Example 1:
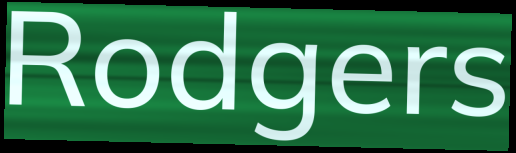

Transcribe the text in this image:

Rodgers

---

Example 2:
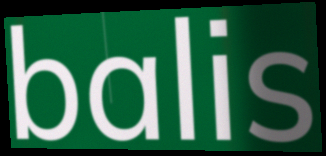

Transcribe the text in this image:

balis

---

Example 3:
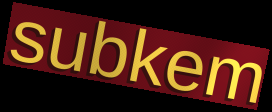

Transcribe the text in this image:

subkem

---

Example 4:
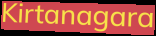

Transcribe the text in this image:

Kirtanagara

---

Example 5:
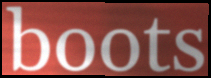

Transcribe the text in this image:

boots